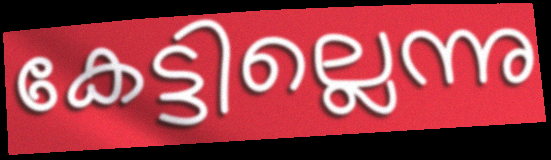
കേട്ടില്ലെന്നു